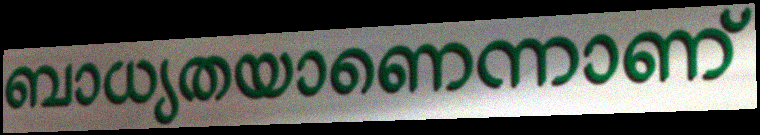
ബാധ്യതയാണെന്നാണ്